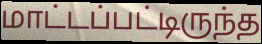
மாட்டப்பட்டிருந்த